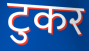
टुकर